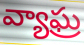
వ్యాఘ్ర